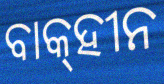
ବାକ୍‌ହୀନ